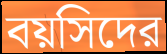
বয়সিদের